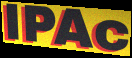
IPAc